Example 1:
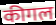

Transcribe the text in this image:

कीगल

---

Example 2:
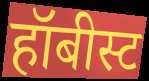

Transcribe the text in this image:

हॉबीस्ट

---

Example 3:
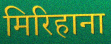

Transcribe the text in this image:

मिरिहाना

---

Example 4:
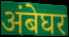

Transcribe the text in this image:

अंबेघर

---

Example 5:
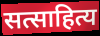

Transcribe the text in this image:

सत्साहित्य